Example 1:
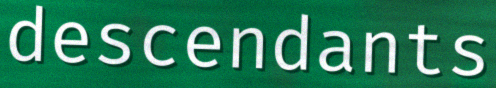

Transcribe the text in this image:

descendants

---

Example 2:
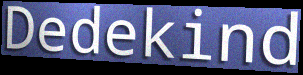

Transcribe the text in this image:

Dedekind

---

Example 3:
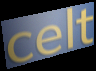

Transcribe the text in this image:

celt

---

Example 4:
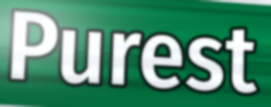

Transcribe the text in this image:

Purest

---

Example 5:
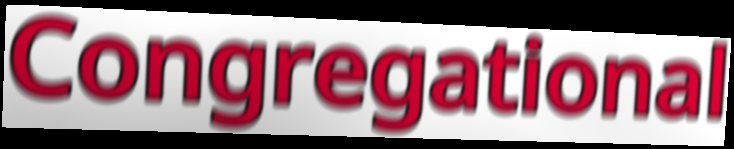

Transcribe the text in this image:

Congregational